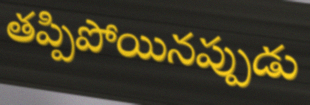
తప్పిపోయినప్పుడు